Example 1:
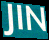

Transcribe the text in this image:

JIN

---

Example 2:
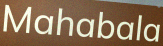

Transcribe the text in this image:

Mahabala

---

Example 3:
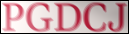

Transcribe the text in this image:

PGDCJ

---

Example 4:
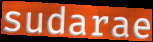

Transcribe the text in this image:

sudarae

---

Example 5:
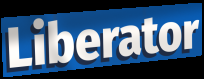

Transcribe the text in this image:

Liberator